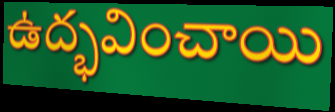
ఉద్భవించాయి